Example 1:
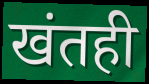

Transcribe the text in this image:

खंतही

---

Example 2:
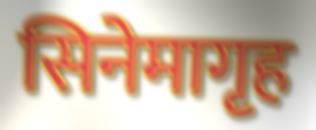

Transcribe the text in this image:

सिनेमागृह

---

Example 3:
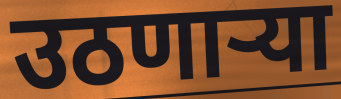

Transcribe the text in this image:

उठणाऱ्या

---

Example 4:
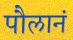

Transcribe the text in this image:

पौलानं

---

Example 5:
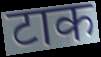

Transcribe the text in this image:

टाक